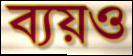
ব্যয়ও